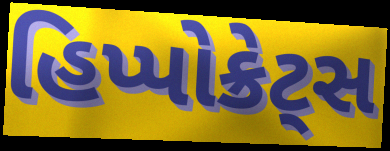
હિપ્પોક્રેટ્સ